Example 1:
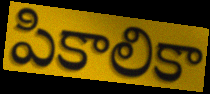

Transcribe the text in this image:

పికాలికా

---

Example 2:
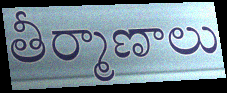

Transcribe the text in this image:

తీర్మాణాలు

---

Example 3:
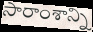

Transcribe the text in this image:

సారాంశాన్ని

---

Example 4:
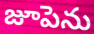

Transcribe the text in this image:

జూపెను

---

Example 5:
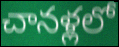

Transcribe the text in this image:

చానళ్లలో